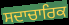
ਸਦਾਚਾਰਿਕ